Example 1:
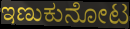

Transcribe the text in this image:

ಇಣುಕುನೋಟ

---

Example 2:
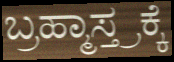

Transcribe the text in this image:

ಬ್ರಹ್ಮಾಸ್ತ್ರಕ್ಕೆ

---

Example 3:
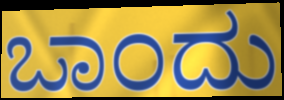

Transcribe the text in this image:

ಒಾಂದು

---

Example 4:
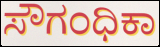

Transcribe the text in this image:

ಸೌಗಂಧಿಕಾ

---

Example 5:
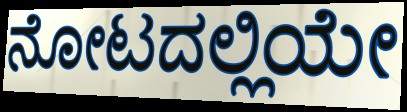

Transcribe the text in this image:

ನೋಟದಲ್ಲಿಯೇ